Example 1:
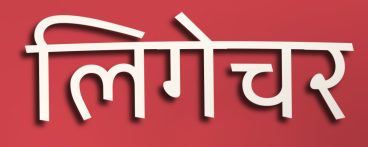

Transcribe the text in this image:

लिगेचर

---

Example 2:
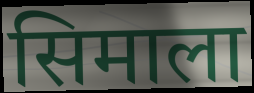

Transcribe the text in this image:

सिमाला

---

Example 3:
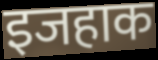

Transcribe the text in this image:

इजहाक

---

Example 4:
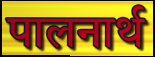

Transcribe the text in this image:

पालनार्थ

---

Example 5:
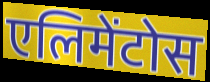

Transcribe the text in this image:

एलिमेंटोस